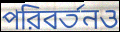
পরিবর্তনও